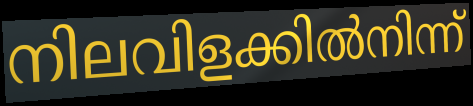
നിലവിളക്കിൽനിന്ന്